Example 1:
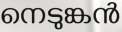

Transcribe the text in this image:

നെടുങ്കൻ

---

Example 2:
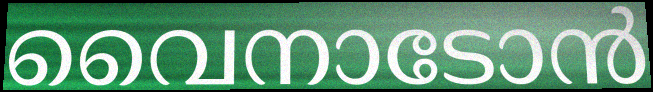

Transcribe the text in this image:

വൈനാടോൻ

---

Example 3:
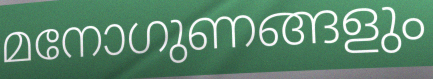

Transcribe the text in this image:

മനോഗുണങ്ങളും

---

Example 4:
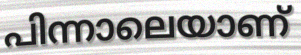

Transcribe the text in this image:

പിന്നാലെയാണ്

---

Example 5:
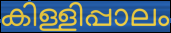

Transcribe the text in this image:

കിള്ളിപ്പാലം